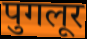
पुगलूर